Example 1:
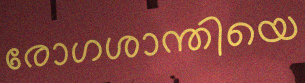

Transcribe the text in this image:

രോഗശാന്തിയെ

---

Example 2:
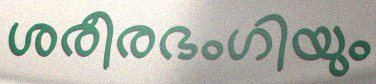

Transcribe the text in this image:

ശരീരഭംഗിയും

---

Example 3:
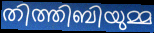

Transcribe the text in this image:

തിത്തിബിയുമ്മ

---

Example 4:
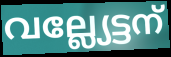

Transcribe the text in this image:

വല്ല്യേട്ടന്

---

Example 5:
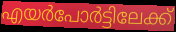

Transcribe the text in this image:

എയർപോർട്ടിലേക്ക്